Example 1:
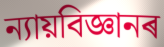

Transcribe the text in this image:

ন্যায়বিজ্ঞানৰ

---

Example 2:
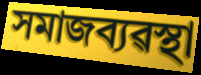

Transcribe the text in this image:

সমাজব্যৱস্থা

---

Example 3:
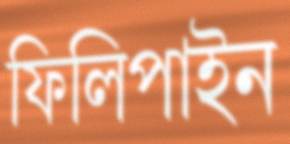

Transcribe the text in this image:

ফিলিপাইন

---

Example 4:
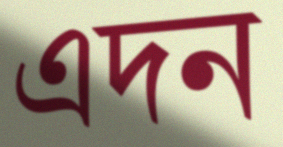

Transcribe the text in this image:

এদন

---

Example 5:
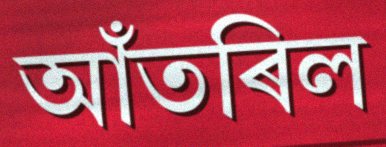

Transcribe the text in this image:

আঁতৰিল